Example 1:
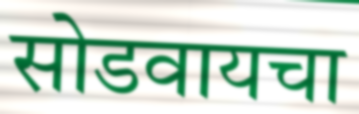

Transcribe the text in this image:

सोडवायचा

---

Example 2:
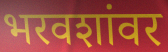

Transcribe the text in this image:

भरवशांवर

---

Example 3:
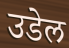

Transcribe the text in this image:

उडेल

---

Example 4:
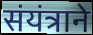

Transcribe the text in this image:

संयंत्राने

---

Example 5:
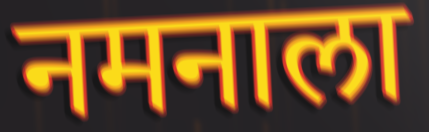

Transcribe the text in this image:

नमनाला